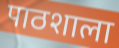
पाठशाला